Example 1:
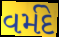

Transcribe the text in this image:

વર્મદે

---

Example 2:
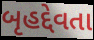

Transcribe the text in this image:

બૃહદ્દેવતા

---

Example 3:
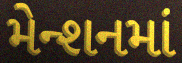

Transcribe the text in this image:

મેન્શનમાં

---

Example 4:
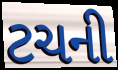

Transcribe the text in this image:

ટચની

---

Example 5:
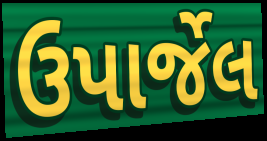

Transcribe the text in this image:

ઉપાર્જેલ